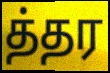
த்தர